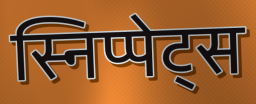
स्निप्पेट्स